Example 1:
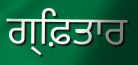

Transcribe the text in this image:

ਗ੍ਫ਼ਿਤਾਰ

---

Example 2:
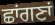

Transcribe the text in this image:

ਛਾਂਗਣਾਂ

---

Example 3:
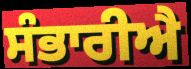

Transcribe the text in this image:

ਸੰਭਾਰੀਐ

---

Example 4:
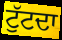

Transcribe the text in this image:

ਟੁੱਟਦਾ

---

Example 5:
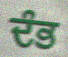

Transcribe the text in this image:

ਦੰਭ